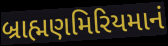
બ્રાહ્મણમિરિયમાનં